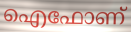
ഐഫോണ്